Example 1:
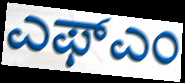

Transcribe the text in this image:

ಎಫ್ಎಂ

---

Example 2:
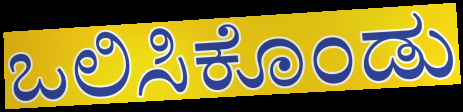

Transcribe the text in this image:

ಒಲಿಸಿಕೊಂಡು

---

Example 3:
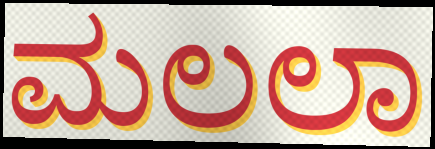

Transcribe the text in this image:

ಮಲಲಾ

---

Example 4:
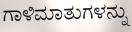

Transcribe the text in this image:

ಗಾಳಿಮಾತುಗಳನ್ನು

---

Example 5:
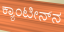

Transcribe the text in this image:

ಕ್ಯಾಂಟೀನ್‌ನ